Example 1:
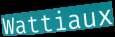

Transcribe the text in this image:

Wattiaux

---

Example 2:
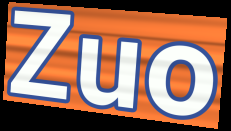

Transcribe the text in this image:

Zuo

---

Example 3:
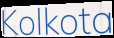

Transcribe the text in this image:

Kolkota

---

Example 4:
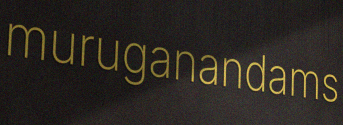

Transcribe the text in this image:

muruganandams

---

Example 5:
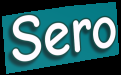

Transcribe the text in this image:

Sero